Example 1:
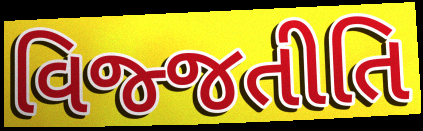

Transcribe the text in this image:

વિજ્જતીતિ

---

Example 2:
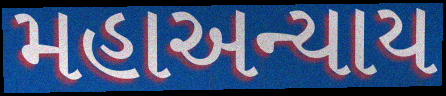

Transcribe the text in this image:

મહાઅન્યાય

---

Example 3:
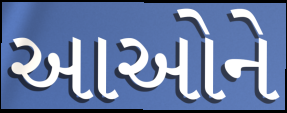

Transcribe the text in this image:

આઓને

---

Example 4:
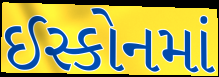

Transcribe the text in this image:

ઈસ્કોનમાં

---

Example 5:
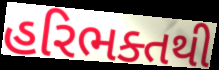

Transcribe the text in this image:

હરિભક્તથી